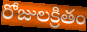
రోజులక్రితం